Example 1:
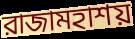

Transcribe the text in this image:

রাজামহাশয়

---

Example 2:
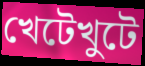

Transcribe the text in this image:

খেটেখুটে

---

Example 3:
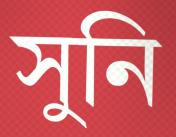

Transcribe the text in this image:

সুনি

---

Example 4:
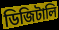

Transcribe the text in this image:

ডিজিটালি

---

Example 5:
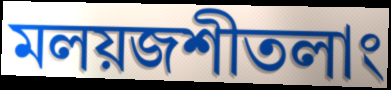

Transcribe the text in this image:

মলয়জশীতলাং